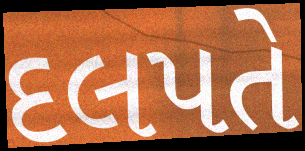
દલપતે